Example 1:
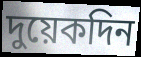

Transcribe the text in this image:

দুয়েকদিন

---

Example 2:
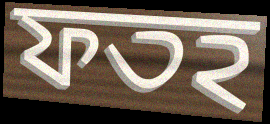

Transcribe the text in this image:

ফতহ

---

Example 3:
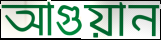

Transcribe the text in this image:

আগুয়ান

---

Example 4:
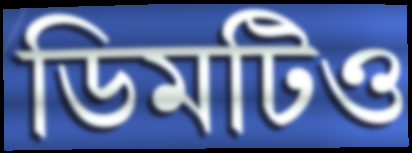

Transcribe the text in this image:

ডিমটিও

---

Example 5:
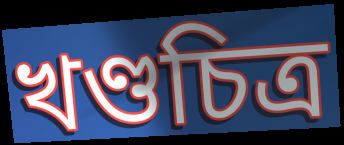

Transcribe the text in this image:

খণ্ডচিত্র